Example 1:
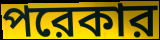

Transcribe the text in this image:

পরেকার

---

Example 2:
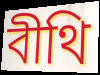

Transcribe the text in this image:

বীথি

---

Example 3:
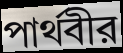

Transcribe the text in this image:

পার্থবীর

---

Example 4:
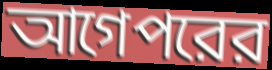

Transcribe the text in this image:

আগেপরের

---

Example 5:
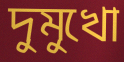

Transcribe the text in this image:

দুমুখো